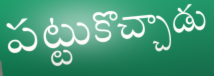
పట్టుకొచ్చాడు